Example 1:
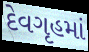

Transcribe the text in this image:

દેવગૃહમાં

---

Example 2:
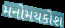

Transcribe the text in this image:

મનોમયકોશ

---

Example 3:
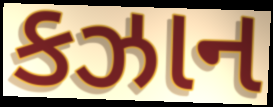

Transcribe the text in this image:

કઝાન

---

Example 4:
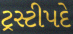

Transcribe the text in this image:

ટ્રસ્ટીપદે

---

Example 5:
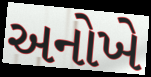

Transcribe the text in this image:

અનોખે